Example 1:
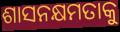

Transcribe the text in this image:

ଶାସନକ୍ଷମତାକୁ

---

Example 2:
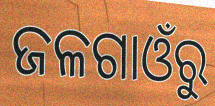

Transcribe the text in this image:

ଜଳଗାଓଁରୁ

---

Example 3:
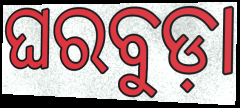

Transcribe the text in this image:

ଘରବୁଡ଼ା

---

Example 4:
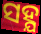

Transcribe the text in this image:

ସହ୍ଯ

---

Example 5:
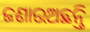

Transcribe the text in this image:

ଜଣାଉଅଛନ୍ତି